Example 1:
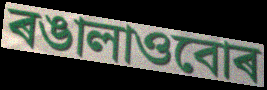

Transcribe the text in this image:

ৰঙালাওবোৰ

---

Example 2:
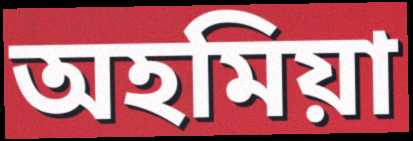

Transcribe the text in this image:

অহমিয়া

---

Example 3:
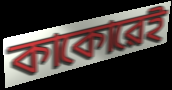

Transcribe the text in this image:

কাকোৱেই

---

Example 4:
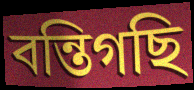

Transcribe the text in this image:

বন্তিগছি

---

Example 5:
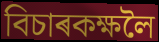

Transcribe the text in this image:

বিচাৰকক্ষলৈ